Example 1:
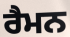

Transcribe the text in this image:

ਰੈਮਨ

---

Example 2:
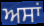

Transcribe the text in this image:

ਅਸਾਂ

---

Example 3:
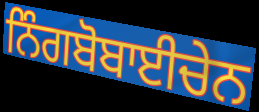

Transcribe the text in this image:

ਨਿੰਗਬੋਬਾਈਚੇਨ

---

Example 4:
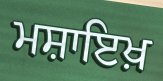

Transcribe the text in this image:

ਮਸ਼ਾਇਖ਼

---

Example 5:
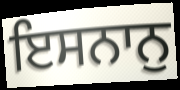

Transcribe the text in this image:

ਇਸਨਾਨੁ